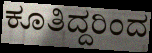
ಕೂತಿದ್ದರಿಂದ